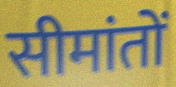
सीमांतों